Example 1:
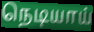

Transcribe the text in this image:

நெடியாய்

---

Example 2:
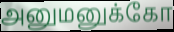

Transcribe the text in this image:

அனுமனுக்கோ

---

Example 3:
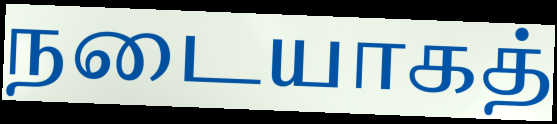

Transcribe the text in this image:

நடையாகத்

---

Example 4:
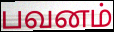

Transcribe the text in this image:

பவனம்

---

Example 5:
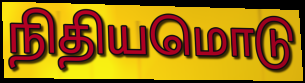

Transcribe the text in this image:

நிதியமொடு